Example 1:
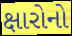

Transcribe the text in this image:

ક્ષારોનો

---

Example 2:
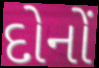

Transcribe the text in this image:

દોનોં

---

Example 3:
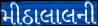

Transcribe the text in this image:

મીઠાલાલની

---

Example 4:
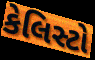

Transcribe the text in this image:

કેલિસ્ટો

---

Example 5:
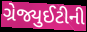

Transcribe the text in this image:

ગ્રેજ્યુઈટીની